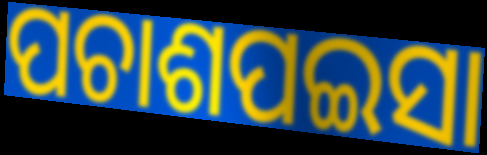
ପଚାଶପଇସା